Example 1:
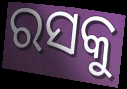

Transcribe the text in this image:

ରସକୁ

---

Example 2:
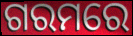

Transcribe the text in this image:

ଗରମରେ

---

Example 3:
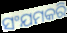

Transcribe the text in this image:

ସଂଯମକରି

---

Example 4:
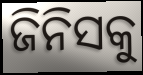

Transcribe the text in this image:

ଜିନିସକୁ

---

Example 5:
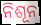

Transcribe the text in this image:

ନିଶୂନ